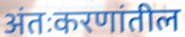
अंतःकरणांतील